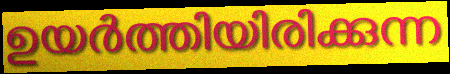
ഉയർത്തിയിരിക്കുന്ന